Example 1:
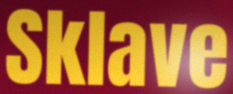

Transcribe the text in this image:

Sklave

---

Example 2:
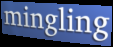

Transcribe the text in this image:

mingling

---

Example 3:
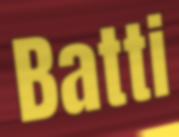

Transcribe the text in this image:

Batti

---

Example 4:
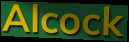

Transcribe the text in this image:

Alcock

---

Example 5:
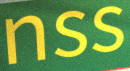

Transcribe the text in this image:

nss